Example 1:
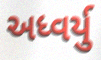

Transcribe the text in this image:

અધ્વર્યુ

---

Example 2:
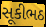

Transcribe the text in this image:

સૂકીભઠ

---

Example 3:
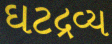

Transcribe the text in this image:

ઘટદ્રવ્ય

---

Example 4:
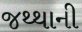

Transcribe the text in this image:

જથ્થાની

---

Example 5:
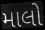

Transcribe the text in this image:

માલો